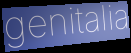
genitalia